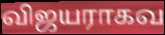
விஜயராகவ